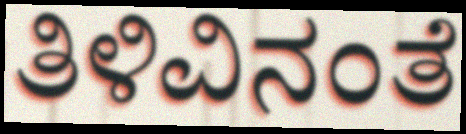
ತಿಳಿವಿನಂತೆ